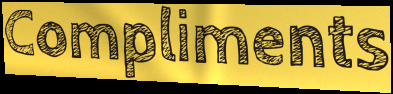
Compliments